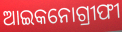
ଆଇକନୋଗ୍ରୀଫୀ